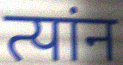
त्यांन